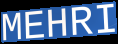
MEHRI